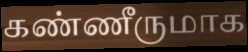
கண்ணீருமாக